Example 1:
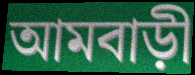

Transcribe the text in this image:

আমবাড়ী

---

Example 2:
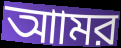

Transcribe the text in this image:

আামর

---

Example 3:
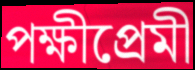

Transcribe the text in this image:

পক্ষীপ্রেমী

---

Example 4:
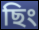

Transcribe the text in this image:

ছিং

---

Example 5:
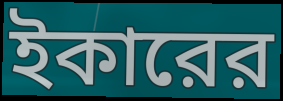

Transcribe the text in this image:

ইকারের